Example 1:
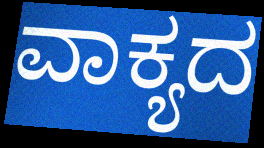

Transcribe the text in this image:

ವಾಕ್ಯದ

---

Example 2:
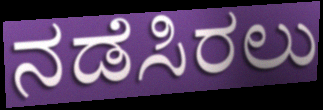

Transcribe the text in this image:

ನಡೆಸಿರಲು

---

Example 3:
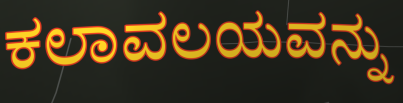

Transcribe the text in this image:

ಕಲಾವಲಯವನ್ನು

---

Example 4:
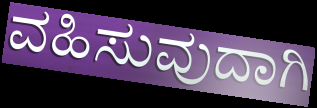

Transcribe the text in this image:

ವಹಿಸುವುದಾಗಿ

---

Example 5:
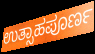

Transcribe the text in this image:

ಉತ್ಸಾಹಪೂರ್ಣ